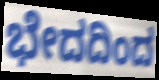
ಭೇದದಿಂದ